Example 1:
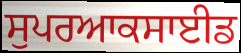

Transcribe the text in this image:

ਸੁਪਰਆਕਸਾਈਡ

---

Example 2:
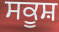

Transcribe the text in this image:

ਸਕੂਸ਼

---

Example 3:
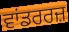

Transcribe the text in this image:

ਵਾਂਡਰਰਜ਼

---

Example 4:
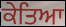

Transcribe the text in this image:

ਕੇਤਿਆ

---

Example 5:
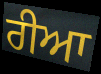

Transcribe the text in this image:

ਰੀਆ